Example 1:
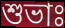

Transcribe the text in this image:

শুভাঃ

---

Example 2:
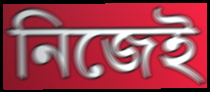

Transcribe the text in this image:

নিজেই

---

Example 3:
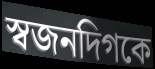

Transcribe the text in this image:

স্বজনদিগকে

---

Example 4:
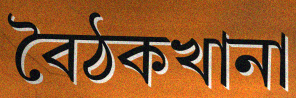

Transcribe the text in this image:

বৈঠকখানা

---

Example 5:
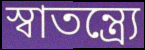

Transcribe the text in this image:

স্বাতন্ত্র্যে